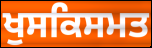
ਖੁਸਕਿਸਮਤ